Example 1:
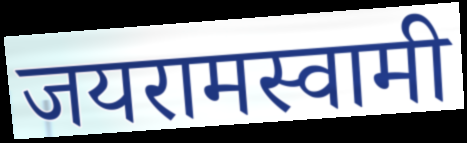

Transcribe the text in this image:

जयरामस्वामी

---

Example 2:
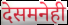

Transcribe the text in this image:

देसमनेही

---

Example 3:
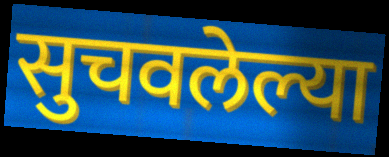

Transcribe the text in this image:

सुचवलेल्या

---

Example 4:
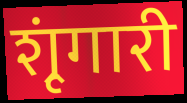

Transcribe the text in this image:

श्रृंगारी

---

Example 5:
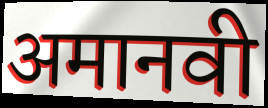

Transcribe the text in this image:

अमानवी